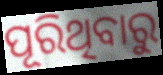
ପୂରିଥିବାରୁ